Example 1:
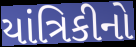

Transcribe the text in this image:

યાંત્રિકીનો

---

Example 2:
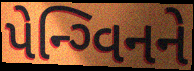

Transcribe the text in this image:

પેન્ગ્વિનને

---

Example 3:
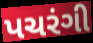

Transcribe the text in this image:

પચરંગી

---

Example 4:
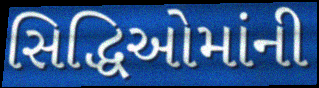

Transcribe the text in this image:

સિદ્ધિઓમાંની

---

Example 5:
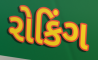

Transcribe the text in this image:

રોકિંગ